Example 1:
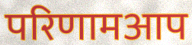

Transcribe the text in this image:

परिणामआप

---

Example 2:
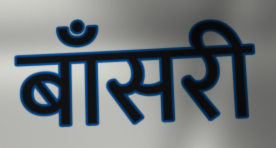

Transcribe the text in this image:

बाँसरी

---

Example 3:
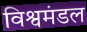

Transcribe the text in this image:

विश्वमंडल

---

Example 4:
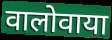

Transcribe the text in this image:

वालोवाया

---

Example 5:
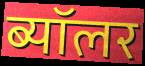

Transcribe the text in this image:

ब्यॉलर